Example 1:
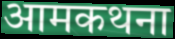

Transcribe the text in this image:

आमकथना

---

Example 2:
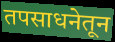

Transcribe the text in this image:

तपसाधनेतून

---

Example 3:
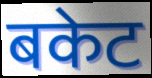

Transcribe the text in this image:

बकेट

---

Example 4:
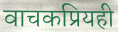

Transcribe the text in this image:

वाचकप्रियही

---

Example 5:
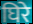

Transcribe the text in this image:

घिरे